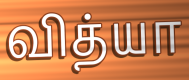
வித்யா